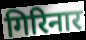
गिरिनार